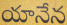
యానేన